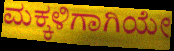
ಮಕ್ಕಳಿಗಾಗಿಯೇ